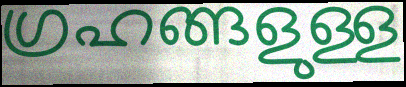
ഗ്രഹങ്ങളുള്ള